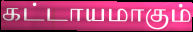
கட்டாயமாகும்